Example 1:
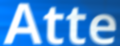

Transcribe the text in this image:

Atte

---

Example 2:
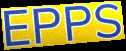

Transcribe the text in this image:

EPPS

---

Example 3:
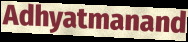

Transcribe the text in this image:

Adhyatmanand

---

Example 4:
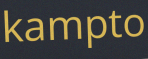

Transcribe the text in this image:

kampto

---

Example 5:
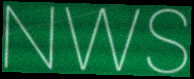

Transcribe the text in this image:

NWS